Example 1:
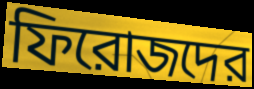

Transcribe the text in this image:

ফিরোজদের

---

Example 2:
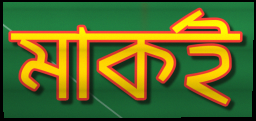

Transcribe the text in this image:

মার্কই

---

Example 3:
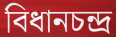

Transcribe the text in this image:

বিধানচন্দ্র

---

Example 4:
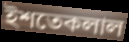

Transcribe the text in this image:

ইশতেকলাল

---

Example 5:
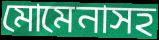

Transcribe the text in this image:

মোমেনাসহ